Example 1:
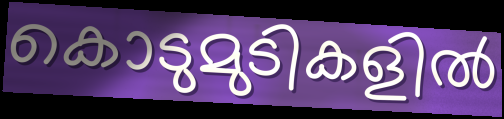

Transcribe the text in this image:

കൊടുമുടികളിൽ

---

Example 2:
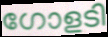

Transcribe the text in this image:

ഗോളടി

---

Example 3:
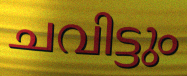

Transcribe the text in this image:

ചവിട്ടും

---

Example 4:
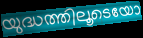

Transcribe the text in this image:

യുദ്ധത്തിലൂടെയോ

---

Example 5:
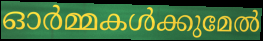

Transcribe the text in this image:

ഓർമ്മകൾക്കുമേൽ